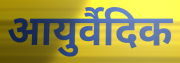
आयुर्वैदिक